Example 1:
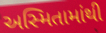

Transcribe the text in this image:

અસ્મિતામાંથી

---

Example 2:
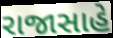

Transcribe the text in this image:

રાજાસાહે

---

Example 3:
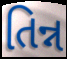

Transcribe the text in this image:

તિન્ન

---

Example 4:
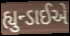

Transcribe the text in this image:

હ્યુન્ડાઈએ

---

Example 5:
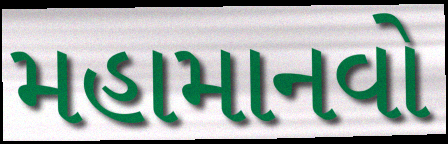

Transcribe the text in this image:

મહામાનવો